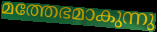
മത്തേഭമാകുന്നു